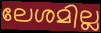
ലേശമില്ല